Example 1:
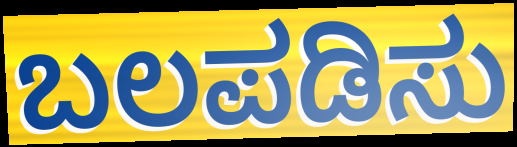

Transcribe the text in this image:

ಬಲಪಡಿಸು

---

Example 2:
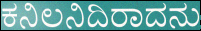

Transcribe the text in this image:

ಕನಿಲನಿದಿರಾದನು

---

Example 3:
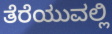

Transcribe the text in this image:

ತೆರೆಯುವಲ್ಲಿ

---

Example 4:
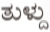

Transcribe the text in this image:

ತುಳ್ದು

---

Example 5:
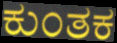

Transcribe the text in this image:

ಕುಂತಕ